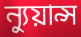
ন্যুয়ান্স